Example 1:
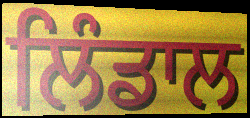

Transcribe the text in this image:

ਲਿੰਡਾਲ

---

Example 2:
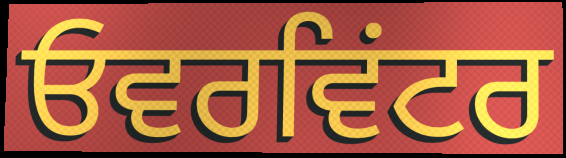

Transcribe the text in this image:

ਓਵਰਵਿਂਟਰ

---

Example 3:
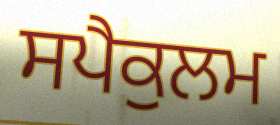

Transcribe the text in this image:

ਸਪੈਕੁਲਮ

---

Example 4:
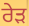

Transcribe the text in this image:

ਰੇੜ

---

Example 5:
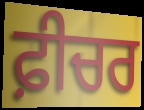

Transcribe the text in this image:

ਫ਼ੀਚਰ